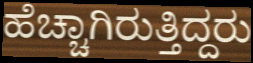
ಹೆಚ್ಚಾಗಿರುತ್ತಿದ್ದರು